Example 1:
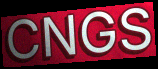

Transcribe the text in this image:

CNGS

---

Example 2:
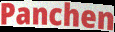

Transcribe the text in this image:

Panchen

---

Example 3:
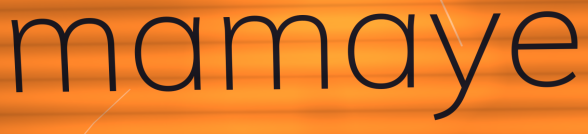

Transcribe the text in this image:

mamaye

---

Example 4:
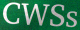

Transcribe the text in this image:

CWSs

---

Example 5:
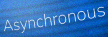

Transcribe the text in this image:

Asynchronous